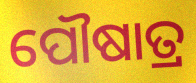
ପୌଷାତ୍ର